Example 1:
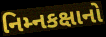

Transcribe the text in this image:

નિમ્નકક્ષાનો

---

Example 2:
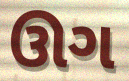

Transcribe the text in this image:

ઊગ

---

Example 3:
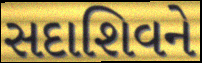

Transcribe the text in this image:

સદાશિવને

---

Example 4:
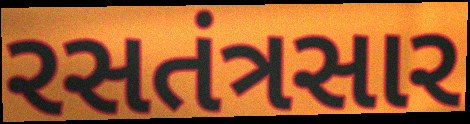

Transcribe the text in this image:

રસતંત્રસાર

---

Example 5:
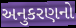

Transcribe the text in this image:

અનુકરણનો